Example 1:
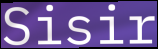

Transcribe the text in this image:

Sisir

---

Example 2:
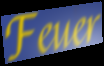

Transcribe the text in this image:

Feuer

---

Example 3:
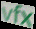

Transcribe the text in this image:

vfx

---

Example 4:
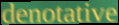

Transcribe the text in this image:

denotative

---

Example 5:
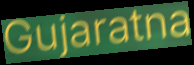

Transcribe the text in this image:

Gujaratna